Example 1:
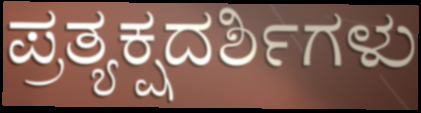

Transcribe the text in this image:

ಪ್ರತ್ಯಕ್ಷದರ್ಶಿಗಳು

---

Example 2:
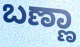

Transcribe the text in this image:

ಬಣ್ಣಾ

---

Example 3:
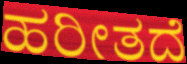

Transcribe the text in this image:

ಹರೀತದೆ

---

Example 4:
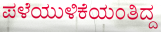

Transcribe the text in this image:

ಪಳೆಯುಳಿಕೆಯಂತಿದ್ದ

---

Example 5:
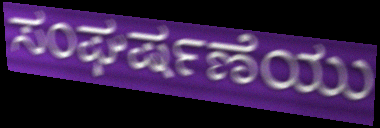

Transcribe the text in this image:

ಸಂಘರ್ಷಣೆಯು